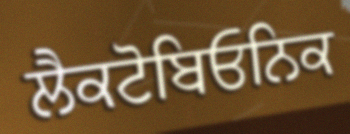
ਲੈਕਟੋਬਿਓਨਿਕ